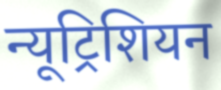
न्यूट्रिशियन